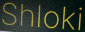
Shloki